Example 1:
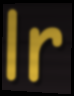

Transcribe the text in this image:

lr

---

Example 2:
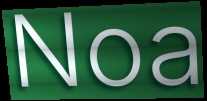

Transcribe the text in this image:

Noa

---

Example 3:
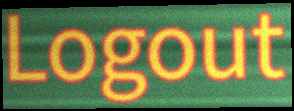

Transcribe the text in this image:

Logout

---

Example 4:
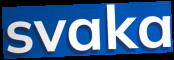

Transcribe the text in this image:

svaka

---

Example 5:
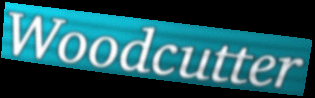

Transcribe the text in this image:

Woodcutter